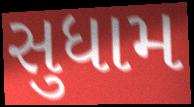
સુધામ